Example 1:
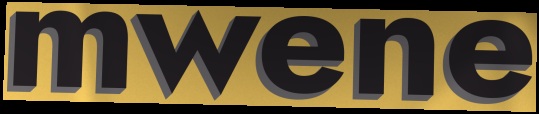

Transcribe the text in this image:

mwene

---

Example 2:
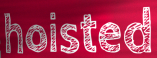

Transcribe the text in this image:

hoisted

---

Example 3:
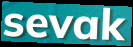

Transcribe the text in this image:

sevak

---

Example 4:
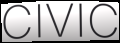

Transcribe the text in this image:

CIVIC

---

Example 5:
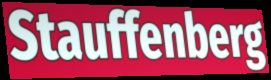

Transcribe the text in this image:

Stauffenberg